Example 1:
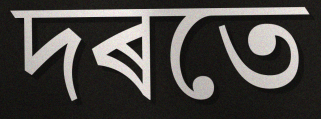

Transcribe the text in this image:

দৰতে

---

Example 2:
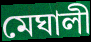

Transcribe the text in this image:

মেঘালী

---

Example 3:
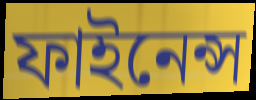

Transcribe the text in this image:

ফাইনেন্স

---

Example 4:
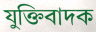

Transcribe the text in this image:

যুক্তিবাদক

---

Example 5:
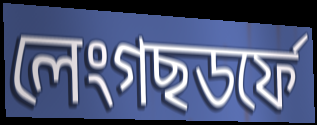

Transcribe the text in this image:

লেংগছডৰ্ফে